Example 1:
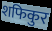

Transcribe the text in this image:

शफिकुर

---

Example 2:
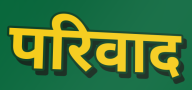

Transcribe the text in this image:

परिवाद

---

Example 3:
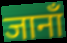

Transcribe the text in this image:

जानाँ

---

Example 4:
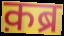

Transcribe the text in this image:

क़ब्र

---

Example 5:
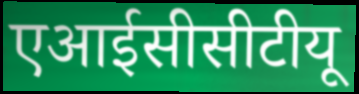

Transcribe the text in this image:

एआईसीसीटीयू